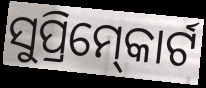
ସୁପ୍ରିମ୍‍କୋର୍ଟ